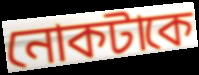
নোকটাকে